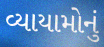
વ્યાયામોનું